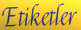
Etiketler